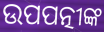
ଉପପତ୍ନୀଙ୍କ